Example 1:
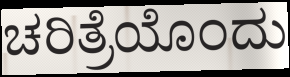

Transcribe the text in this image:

ಚರಿತ್ರೆಯೊಂದು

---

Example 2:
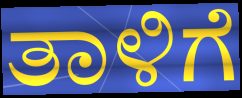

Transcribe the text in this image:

ತಾಳಿಗೆ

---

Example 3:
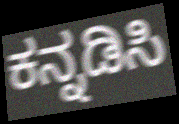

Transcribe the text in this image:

ಕನ್ನಡಿಸಿ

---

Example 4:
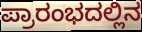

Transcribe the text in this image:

ಪ್ರಾರಂಭದಲ್ಲಿನ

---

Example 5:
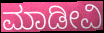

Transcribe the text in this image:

ಮಾಡೀವಿ